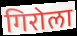
गिरोला